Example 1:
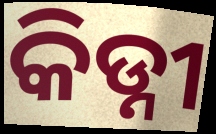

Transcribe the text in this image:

କିଡ୍ନୀ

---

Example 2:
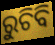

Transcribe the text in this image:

ରୁଚିବି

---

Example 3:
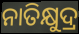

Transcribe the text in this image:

ନାତିକ୍ଷୁଦ୍ର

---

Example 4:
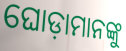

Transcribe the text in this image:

ଘୋଡ଼ାମାନଙ୍କୁ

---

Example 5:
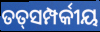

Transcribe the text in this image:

ତତ୍‍ସମ୍ପର୍କୀୟ